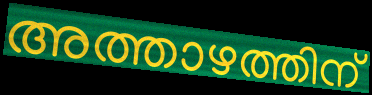
അത്താഴത്തിന്